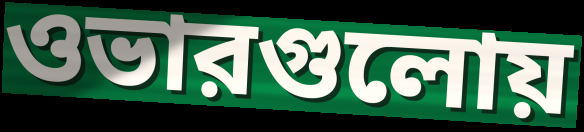
ওভারগুলোয়